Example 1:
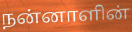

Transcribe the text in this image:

நன்னாளின்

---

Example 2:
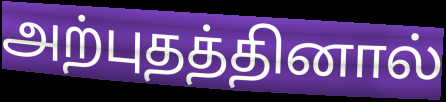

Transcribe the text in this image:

அற்புதத்தினால்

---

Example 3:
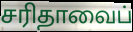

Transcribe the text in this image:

சரிதாவைப்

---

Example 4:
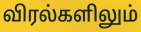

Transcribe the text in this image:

விரல்களிலும்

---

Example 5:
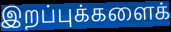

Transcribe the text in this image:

இறப்புக்களைக்